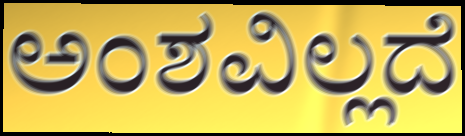
ಅಂಶವಿಲ್ಲದೆ